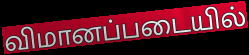
விமானப்படையில்